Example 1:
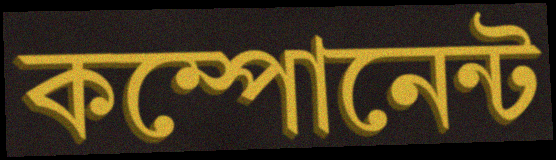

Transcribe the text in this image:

কম্পোনেন্ট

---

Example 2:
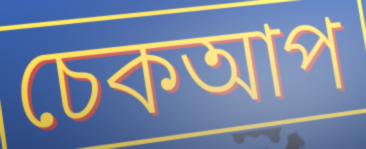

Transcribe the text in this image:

চেকআপ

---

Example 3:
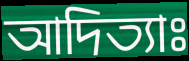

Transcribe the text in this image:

আদিত্যাঃ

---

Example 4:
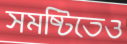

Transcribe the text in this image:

সমষ্টিতেও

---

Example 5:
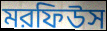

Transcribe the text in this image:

মরফিউস